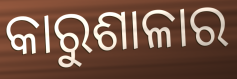
କାରୁଶାଳାର